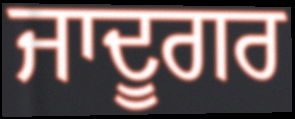
ਜਾਦੂਗਰ